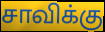
சாவிக்கு